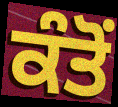
ਕੰਤੋਂ